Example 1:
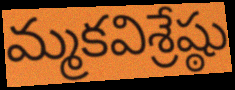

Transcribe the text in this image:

మ్మకవిశ్రేష్ఠు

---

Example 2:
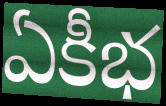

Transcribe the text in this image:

ఏకీభ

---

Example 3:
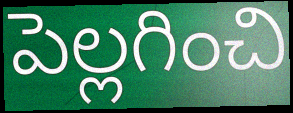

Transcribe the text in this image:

పెల్లగించి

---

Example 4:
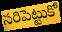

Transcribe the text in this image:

సరిపెట్టుకో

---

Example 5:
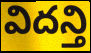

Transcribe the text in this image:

విదన్తి